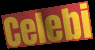
Celebi